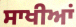
ਸਾਖੀਆਂ